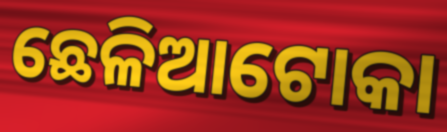
ଛେଳିଆଟୋକା